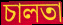
চালতা